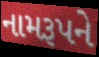
નામરૂપને